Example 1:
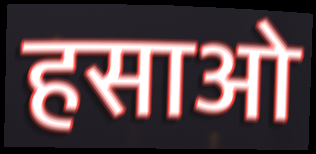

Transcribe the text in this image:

हसाओ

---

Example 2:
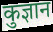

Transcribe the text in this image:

कुज्ञान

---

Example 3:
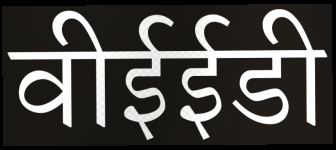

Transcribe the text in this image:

वीईईडी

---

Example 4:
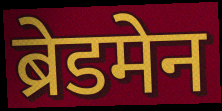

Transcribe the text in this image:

ब्रेडमेन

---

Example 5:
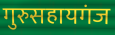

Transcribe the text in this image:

गुरुसहायगंज